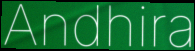
Andhira